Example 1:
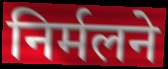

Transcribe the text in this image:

निर्मलने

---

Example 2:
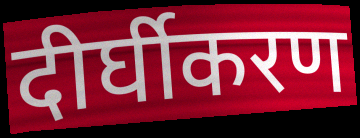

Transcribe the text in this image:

दीर्घीकरण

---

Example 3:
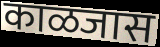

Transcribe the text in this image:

काळजास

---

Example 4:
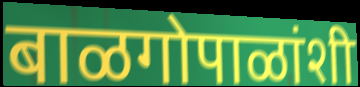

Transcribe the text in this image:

बाळगोपाळांशी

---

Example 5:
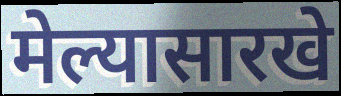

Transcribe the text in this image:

मेल्यासारखे